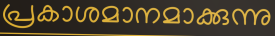
പ്രകാശമാനമാക്കുന്നു